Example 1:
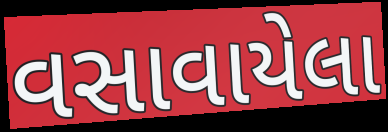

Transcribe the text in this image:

વસાવાયેલા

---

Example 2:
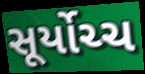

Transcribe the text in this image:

સૂર્યોચ્ચ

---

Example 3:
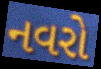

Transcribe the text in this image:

નવરો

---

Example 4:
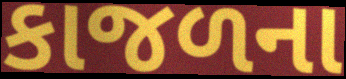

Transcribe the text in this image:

કાજળના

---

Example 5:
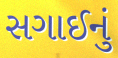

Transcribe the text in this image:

સગાઈનું